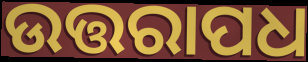
ଉତ୍ତରାପଧ